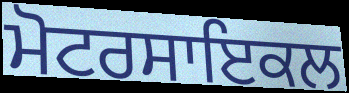
ਮੋਟਰਸਾਇਕਲ